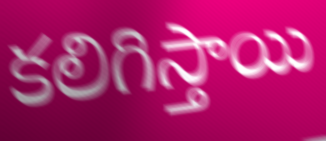
కలిగిస్తాయి